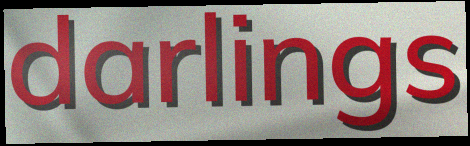
darlings